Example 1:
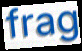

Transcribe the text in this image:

frag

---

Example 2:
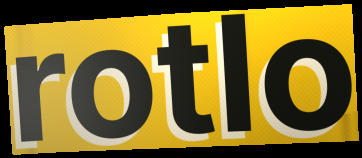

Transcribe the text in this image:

rotlo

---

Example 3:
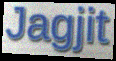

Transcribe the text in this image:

Jagjit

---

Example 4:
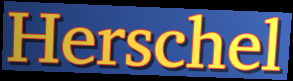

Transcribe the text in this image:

Herschel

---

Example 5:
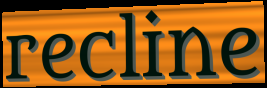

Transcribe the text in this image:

recline